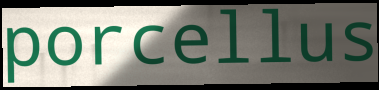
porcellus